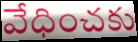
వేధించకు